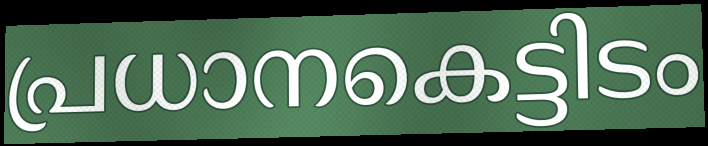
പ്രധാനകെട്ടിടം